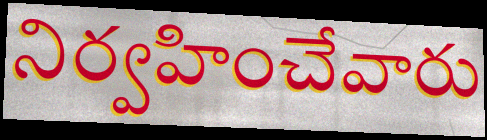
నిర్వహించేవారు